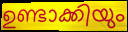
ഉണ്ടാക്കിയും